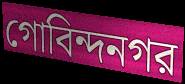
গোবিন্দনগর